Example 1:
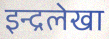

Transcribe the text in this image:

इन्द्रलेखा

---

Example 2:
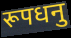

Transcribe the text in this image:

रूपधनु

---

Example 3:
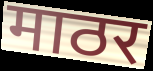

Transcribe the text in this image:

माठर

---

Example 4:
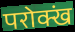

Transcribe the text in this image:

परोक्खं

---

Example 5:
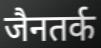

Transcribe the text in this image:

जैनतर्क